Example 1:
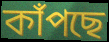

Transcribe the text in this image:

কাঁপছে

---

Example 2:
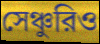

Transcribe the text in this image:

সেঞ্চুরিও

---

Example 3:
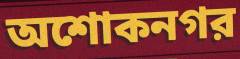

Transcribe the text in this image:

অশোকনগর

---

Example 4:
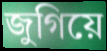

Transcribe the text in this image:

জুগিয়ে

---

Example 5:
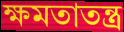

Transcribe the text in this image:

ক্ষমতাতন্ত্র